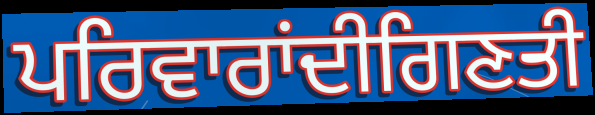
ਪਰਿਵਾਰਾਂਦੀਗਿਣਤੀ